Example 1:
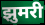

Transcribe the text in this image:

झुमरी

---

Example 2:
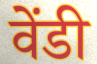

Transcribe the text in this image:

वेंडी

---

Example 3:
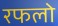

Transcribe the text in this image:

रफलो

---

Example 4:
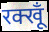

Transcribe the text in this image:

रक्खूँ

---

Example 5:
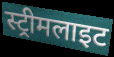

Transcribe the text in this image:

स्ट्रीमलाइट